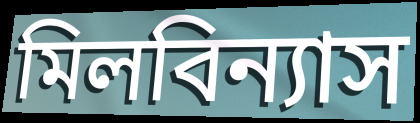
মিলবিন্যাস